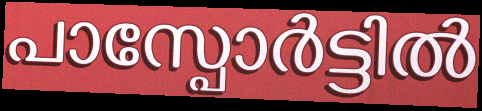
പാസ്പോർട്ടിൽ